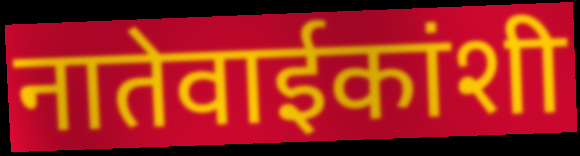
नातेवाईकांशी